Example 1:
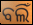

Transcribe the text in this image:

ବଲିଁ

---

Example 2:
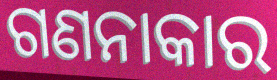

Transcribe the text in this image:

ଗଣନାକାର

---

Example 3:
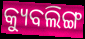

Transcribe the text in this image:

କ୍ୟୁବଲିଙ୍ଗ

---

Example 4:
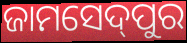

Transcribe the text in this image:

ଜାମସେଦ୍‌ପୁର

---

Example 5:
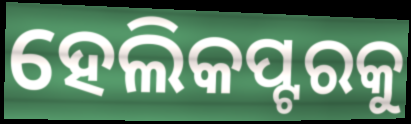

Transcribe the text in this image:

ହେଲିକପ୍ଟରକୁ